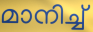
മാനിച്ച്